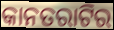
କାନତରାଟିର